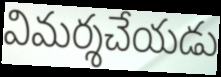
విమర్శచేయడు